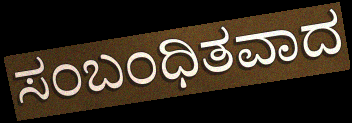
ಸಂಬಂಧಿತವಾದ